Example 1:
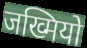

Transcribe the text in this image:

जख्मियो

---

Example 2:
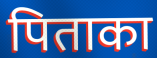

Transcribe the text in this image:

पिताका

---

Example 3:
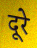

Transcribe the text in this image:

दूरे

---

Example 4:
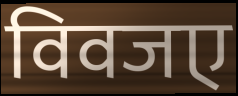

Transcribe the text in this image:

विवजए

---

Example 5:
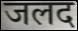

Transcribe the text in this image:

जलद